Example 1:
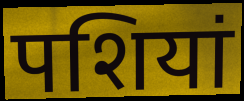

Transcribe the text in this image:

पशियां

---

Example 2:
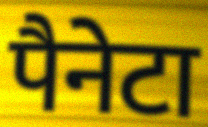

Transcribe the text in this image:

पैनेटा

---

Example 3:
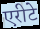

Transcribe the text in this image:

एरीटे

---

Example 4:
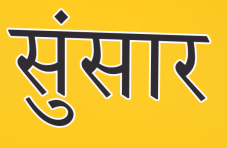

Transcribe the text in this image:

सुंसार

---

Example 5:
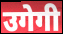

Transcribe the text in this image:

उगेगी